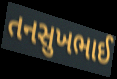
તનસુખભાઈ